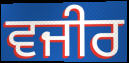
ਵਜੀਰ